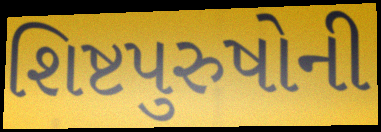
શિષ્ટપુરુષોની